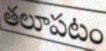
తలూపటం